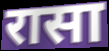
रासा